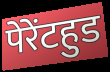
पेरेंटहुड